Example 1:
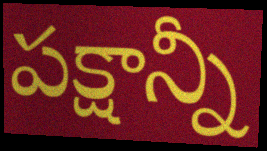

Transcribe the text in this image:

పక్షాన్నీ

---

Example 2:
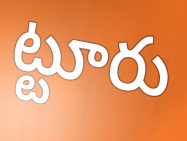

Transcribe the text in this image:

ట్టూరు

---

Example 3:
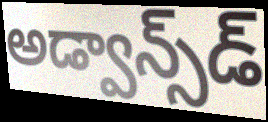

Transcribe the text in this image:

అడ్వాన్స్‌డ్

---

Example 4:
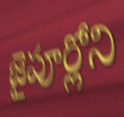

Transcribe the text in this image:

జైపూర్లోని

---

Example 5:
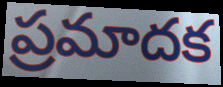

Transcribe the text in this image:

ప్రమాదక